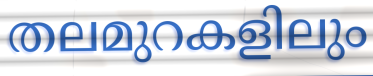
തലമുറകളിലും